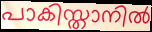
പാകിസ്താനിൽ